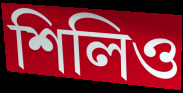
শিলিও